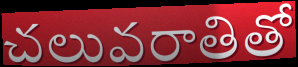
చలువరాతితో